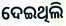
ଦେଇଥିଲି